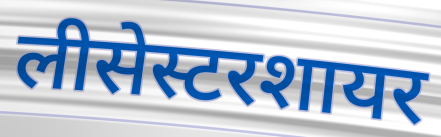
लीसेस्टरशायर